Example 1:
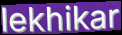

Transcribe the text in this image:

lekhikar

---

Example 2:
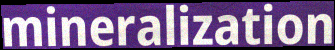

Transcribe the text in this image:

mineralization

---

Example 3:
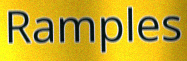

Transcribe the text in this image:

Ramples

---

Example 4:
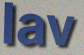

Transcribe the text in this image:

Iav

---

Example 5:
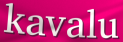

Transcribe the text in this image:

kavalu